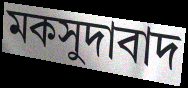
মকসুদাবাদ